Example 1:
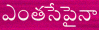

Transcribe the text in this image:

ఎంతసేపైనా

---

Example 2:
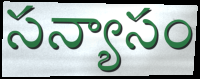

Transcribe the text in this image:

సన్యాసం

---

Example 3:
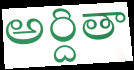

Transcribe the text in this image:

అర్దితా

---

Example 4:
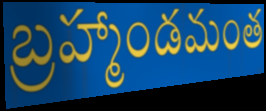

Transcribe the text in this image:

బ్రహ్మాండమంత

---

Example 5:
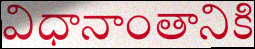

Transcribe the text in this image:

విధానాంతానికి